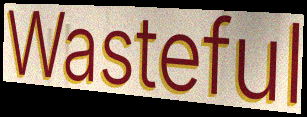
Wasteful